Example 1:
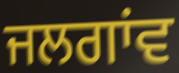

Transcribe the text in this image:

ਜਲਗਾਂਵ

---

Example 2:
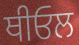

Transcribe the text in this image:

ਥੀਓਲ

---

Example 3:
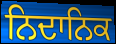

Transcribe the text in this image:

ਨਿਦਾਨਿਕ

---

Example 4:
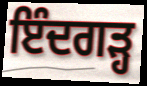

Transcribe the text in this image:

ਇੰਦਗੜ੍ਹ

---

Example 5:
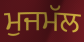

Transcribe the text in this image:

ਮੁਜਮੱਲ